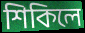
শিকিলে